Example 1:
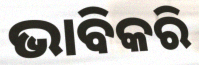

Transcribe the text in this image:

ଭାବିକରି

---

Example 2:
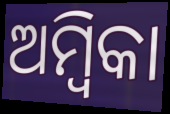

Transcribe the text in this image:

ଅମ୍ବିକା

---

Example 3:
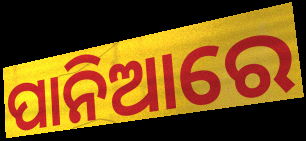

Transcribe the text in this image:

ପାନିଆରେ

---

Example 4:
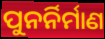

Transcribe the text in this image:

ପୁନର୍ନିର୍ମାଣ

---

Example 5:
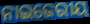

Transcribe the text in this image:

ନାଇଜେରୀୟ